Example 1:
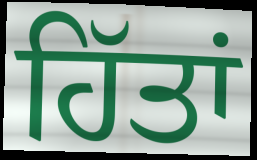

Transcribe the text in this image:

ਹਿੱਤਾਂ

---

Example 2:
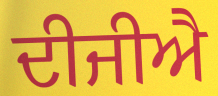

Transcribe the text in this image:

ਦੀਜੀਐ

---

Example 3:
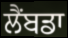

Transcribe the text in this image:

ਲੈਂਬਡਾ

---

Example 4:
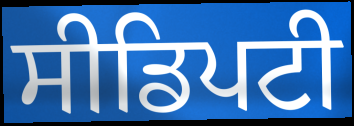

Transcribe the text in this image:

ਸੀਡਿਪਟੀ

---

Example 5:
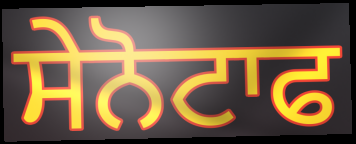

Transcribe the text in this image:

ਸੇਨੋਟਾਫ